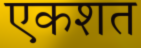
एकशत